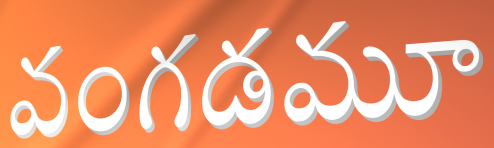
వంగడమూ